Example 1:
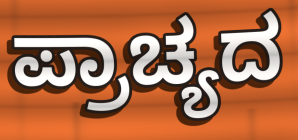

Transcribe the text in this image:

ಪ್ರಾಚ್ಯದ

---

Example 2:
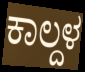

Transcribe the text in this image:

ಕಾಲ್ದಳ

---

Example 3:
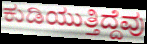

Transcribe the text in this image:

ಕುಡಿಯುತ್ತಿದ್ದೆವು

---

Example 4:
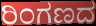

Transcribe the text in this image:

ರಿಂಗಣದ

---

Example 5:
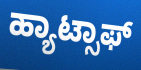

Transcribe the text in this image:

ಹ್ಯಾಟ್ಸಾಫ್